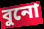
বুনো